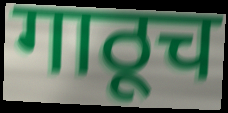
गाठूच